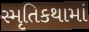
સ્મૃતિકથામાં